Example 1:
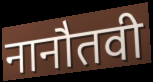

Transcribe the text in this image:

नानौतवी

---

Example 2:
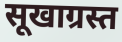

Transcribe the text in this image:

सूखाग्रस्त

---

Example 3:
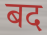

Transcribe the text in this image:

बद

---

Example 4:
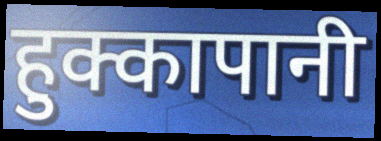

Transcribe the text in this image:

हुक्कापानी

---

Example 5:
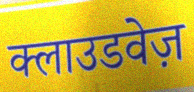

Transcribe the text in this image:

क्लाउडवेज़